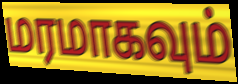
மரமாகவும்